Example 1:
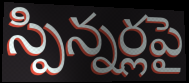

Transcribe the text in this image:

స్పిన్నర్లపై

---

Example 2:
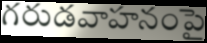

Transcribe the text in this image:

గరుడవాహనంపై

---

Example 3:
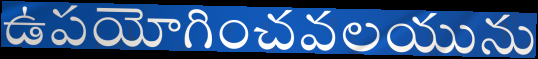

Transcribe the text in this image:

ఉపయోగించవలయును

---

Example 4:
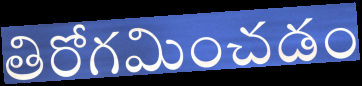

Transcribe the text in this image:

తిరోగమించడం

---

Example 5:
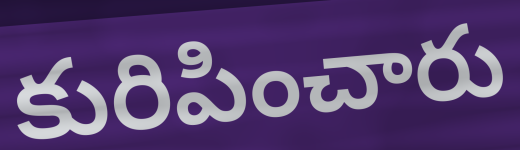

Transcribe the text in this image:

కురిపించారు